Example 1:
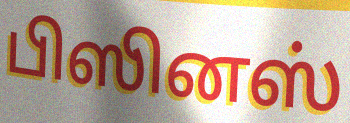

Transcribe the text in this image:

பிஸினஸ்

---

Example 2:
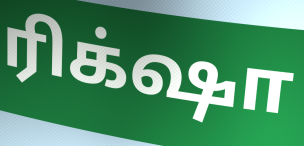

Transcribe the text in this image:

ரிக்‌ஷா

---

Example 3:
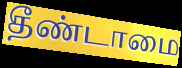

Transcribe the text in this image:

தீண்டாமை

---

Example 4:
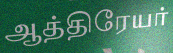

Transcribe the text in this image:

ஆத்திரேயர்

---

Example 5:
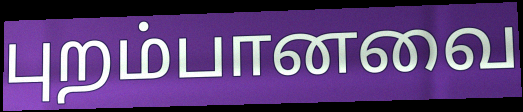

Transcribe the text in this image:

புறம்பானவை